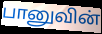
பானுவின்